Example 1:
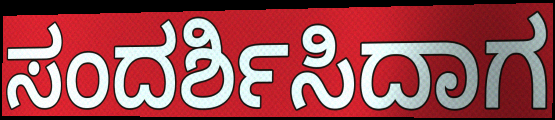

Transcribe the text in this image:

ಸಂದರ್ಶಿಸಿದಾಗ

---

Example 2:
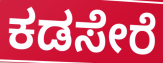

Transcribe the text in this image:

ಕಡಸೇರೆ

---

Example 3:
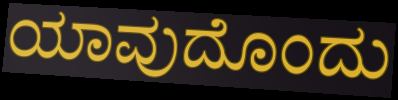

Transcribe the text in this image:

ಯಾವುದೊಂದು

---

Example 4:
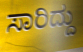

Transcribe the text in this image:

ಸಾರಿದ್ದು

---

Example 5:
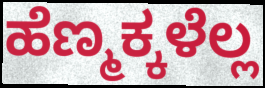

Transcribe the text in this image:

ಹೆಣ್ಮಕ್ಕಳೆಲ್ಲ